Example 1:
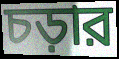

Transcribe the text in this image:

চড়ার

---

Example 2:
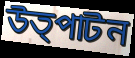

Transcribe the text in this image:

উত্পাটন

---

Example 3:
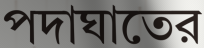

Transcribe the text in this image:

পদাঘাতের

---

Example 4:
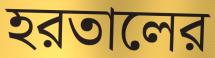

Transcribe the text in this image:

হরতালের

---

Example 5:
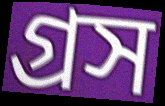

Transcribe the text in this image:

গ্রস